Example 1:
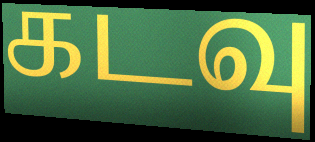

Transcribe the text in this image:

கடவு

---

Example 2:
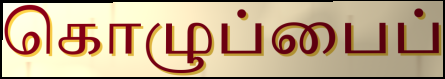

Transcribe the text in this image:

கொழுப்பைப்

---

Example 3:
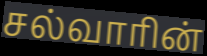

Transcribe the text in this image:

சல்வாரின்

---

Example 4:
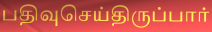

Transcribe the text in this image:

பதிவுசெய்திருப்பார்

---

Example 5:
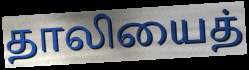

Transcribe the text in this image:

தாலியைத்